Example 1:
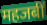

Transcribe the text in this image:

महजबीं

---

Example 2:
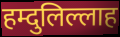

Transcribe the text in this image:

हम्दुलिल्लाह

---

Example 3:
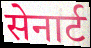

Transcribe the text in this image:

सेनार्ट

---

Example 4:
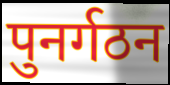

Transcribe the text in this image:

पुनर्गठन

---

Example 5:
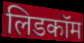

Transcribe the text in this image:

लिडकॉम